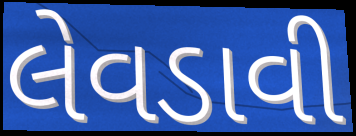
લેવડાવી